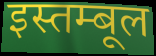
इस्तम्बूल